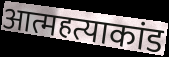
आत्महत्याकांड